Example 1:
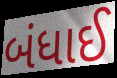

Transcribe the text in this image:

બંધાઈ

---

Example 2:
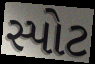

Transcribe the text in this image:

સ્પોટ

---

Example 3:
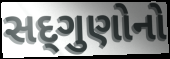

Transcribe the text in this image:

સદ્‌ગુણોનો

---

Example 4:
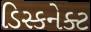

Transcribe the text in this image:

ડિસ્કનેક્ટ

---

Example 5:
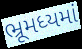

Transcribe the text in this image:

ભ્રૂમધ્યમાં